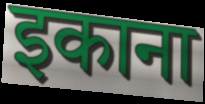
इकाना